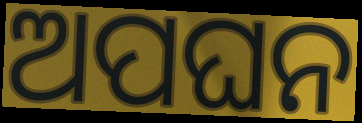
ଅପଘନ